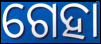
ଗେହା